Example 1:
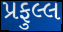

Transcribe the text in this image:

પ્રફુલ્લ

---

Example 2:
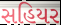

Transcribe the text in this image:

સહિયર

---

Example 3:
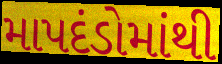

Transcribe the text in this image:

માપદંડોમાંથી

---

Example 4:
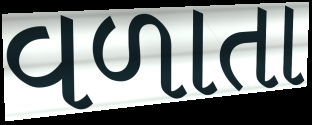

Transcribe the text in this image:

વળાતા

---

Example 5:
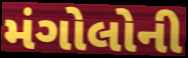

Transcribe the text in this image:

મંગોલોની